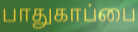
பாதுகாப்பை